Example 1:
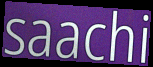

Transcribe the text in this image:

saachi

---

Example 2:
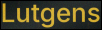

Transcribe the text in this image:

Lutgens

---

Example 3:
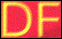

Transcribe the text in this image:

DF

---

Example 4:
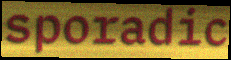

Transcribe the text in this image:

sporadic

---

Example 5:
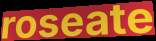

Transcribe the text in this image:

roseate